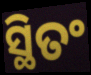
ସ୍ଥିତଂ